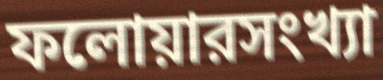
ফলোয়ারসংখ্যা